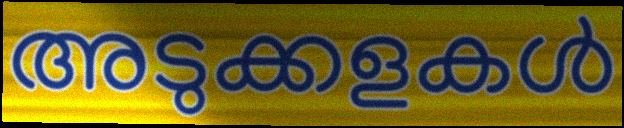
അടുക്കളകൾ